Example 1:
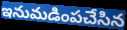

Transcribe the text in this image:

ఇనుమడింపచేసిన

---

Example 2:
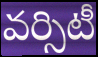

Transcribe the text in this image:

వర్సిటీ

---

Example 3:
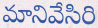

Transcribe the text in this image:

మానివేసిరి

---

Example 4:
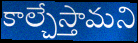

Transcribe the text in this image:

కాల్చేస్తామని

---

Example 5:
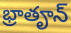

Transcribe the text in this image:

భ్రాతౄన్